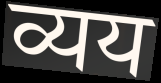
व्यय